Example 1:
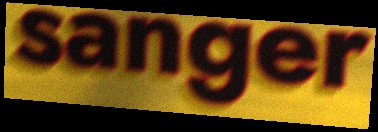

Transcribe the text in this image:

sanger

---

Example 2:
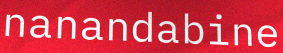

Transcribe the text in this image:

nanandabine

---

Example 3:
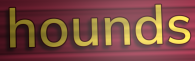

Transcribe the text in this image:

hounds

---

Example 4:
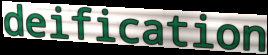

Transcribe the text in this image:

deification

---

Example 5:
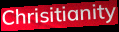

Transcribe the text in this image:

Chrisitianity